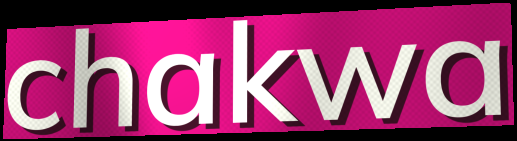
chakwa